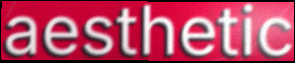
aesthetic